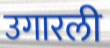
उगारली